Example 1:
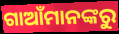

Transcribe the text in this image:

ଗାଆଁମାନଙ୍କରୁ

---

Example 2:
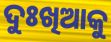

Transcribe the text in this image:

ଦୁଃଖିଆକୁ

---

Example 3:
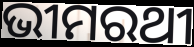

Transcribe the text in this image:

ଭୀମରଥୀ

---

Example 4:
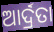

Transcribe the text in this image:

ଆର୍ଦ୍ରତା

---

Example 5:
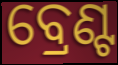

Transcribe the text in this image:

ବ୍ରେଣ୍ଟ